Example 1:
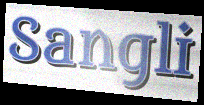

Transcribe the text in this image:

Sangli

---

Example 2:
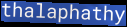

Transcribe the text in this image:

thalaphathy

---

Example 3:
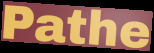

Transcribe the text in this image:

Pathe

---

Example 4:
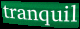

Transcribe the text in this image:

tranquil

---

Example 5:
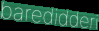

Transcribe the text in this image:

baredidderi